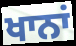
ਖਾਨਾਂ